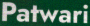
Patwari